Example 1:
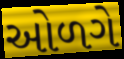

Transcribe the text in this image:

ઓળગે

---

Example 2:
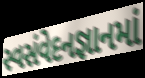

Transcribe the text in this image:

સ્વસંવેદનજ્ઞાનમાં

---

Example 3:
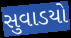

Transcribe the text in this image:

સુવાડયો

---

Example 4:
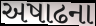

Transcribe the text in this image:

અષાઢના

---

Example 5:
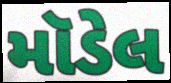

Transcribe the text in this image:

મૉડેલ